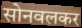
सोनवलकर